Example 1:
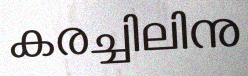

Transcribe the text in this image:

കരച്ചിലിനു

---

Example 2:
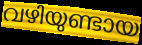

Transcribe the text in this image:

വഴിയുണ്ടായ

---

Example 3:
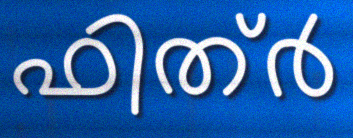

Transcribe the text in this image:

ഫിത്ർ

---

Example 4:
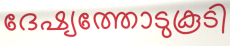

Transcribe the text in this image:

ദേഷ്യത്തോടുകൂടി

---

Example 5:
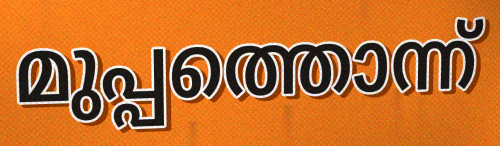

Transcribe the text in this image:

മുപ്പത്തൊന്ന്